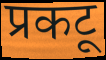
प्रकटू